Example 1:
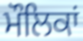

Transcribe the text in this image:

ਮੌਲਿਕਾਂ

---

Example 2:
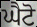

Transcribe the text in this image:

ਘੈਟੋ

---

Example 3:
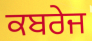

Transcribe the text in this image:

ਕਬਰੇਜ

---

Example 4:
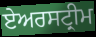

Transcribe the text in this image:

ਏਅਰਸਟ੍ਰੀਮ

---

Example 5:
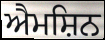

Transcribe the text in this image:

ਐਮਸ਼ਿਨ